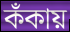
কঁকায়